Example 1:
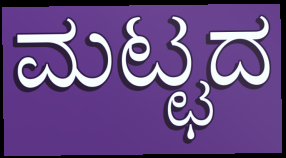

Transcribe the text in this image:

ಮಟ್ಟದ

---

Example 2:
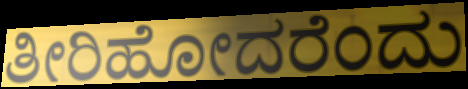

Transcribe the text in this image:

ತೀರಿಹೋದರೆಂದು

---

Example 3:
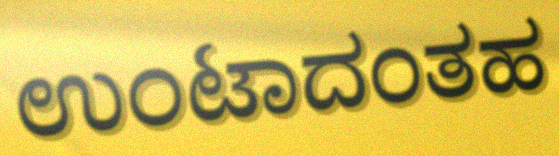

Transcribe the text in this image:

ಉಂಟಾದಂತಹ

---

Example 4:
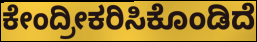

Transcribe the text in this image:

ಕೇಂದ್ರೀಕರಿಸಿಕೊಂಡಿದೆ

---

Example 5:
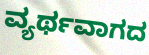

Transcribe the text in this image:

ವ್ಯರ್ಥವಾಗದ